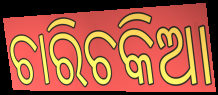
ଚାରିଚକିଆ